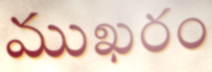
ముఖరం